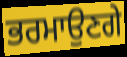
ਭਰਮਾਉਣਗੇ